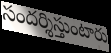
సందర్శిస్తుంటారు